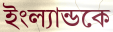
ইংল্যান্ডকে